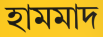
হামমাদ